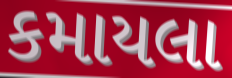
કમાયલા